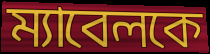
ম্যাবেলকে